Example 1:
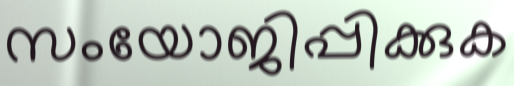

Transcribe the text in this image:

സംയോജിപ്പിക്കുക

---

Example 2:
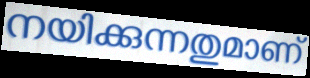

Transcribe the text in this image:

നയിക്കുന്നതുമാണ്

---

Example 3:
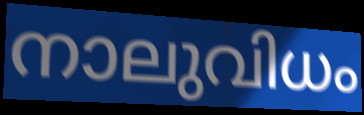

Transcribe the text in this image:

നാലുവിധം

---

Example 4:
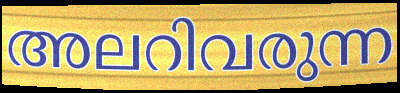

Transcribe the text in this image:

അലറിവരുന്ന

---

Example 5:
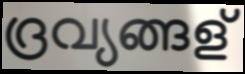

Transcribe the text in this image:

ദ്രവ്യങ്ങള്